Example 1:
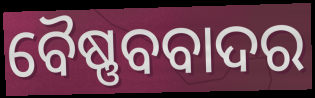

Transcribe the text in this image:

ବୈଷ୍ଣବବାଦର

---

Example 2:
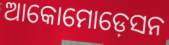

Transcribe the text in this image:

ଆକୋମୋଡ଼େସନ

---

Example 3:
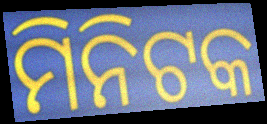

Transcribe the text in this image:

ମିନିଟକ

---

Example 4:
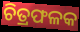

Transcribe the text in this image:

ଚିତ୍ରଫଳକ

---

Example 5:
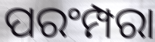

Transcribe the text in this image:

ପରଂମ୍ପରା